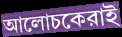
আলোচকেরাই